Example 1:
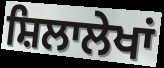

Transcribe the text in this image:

ਸ਼ਿਲਾਲੇਖਾਂ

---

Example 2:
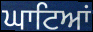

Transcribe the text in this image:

ਘਾਟਿਆਂ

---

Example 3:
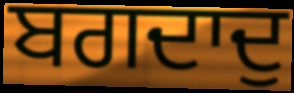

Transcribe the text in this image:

ਬਗਦਾਦੁ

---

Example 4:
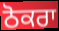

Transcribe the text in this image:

ਠੋਕਰਾ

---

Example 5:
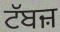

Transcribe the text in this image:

ਟੱਬਜ਼